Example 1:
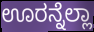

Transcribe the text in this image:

ಊರನ್ನೆಲ್ಲಾ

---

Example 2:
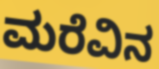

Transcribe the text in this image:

ಮರೆವಿನ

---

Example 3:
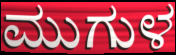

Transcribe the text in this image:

ಮುಗುಳ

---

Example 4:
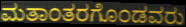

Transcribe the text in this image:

ಮತಾಂತರಗೊಂಡವರು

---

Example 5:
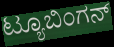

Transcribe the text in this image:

ಟ್ಯೂಬಿಂಗನ್